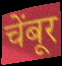
चेंबूर